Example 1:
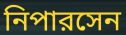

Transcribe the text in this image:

নিপারসেন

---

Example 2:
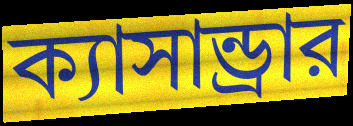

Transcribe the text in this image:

ক্যাসান্ড্রার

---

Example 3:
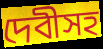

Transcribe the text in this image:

দেবীসহ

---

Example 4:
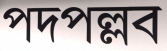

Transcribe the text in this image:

পদপল্লব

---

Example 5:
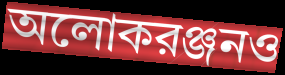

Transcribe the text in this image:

অলোকরঞ্জনও